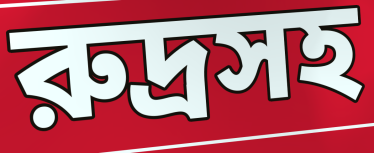
রুদ্রসহ